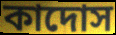
কাদোস